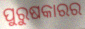
ପୁରୁଷକାରର